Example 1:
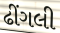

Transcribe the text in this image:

ઢીંગલી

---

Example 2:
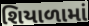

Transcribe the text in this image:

શિયાળામાં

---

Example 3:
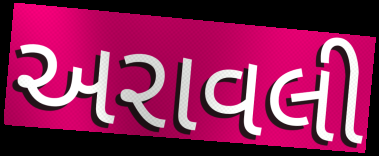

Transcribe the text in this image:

અરાવલી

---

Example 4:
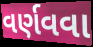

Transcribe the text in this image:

વર્ણવવા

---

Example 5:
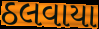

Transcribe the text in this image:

ઠલવાયા